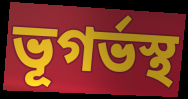
ভূগৰ্ভস্থ